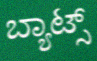
ಬ್ಯಾಟ್ಸ್